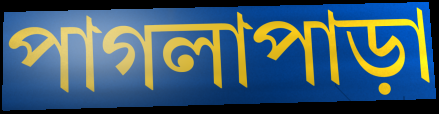
পাগলাপাড়া